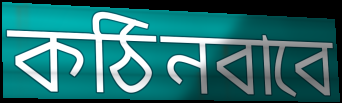
কঠিনবাবে